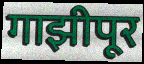
गाझीपूर